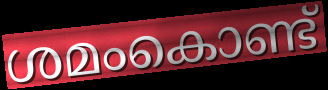
ശമംകൊണ്ട്